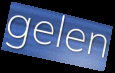
gelen